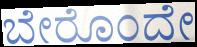
ಬೇರೊಂದೇ